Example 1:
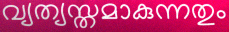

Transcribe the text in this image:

വ്യത്യസ്തമാകുന്നതും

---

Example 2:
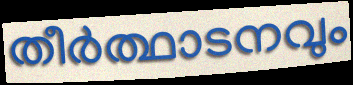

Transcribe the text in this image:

തീർത്ഥാടനവും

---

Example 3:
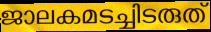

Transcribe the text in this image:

ജാലകമടച്ചിടരുത്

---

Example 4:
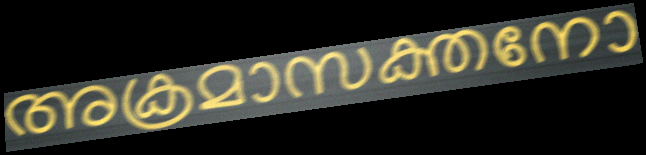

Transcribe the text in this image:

അക്രമാസക്തനോ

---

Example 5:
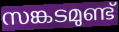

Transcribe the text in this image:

സങ്കടമുണ്ട്